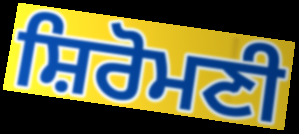
ਸ਼ਿਰੋਮਣੀ